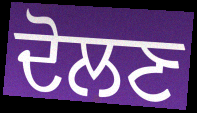
ਦੋਲਣ